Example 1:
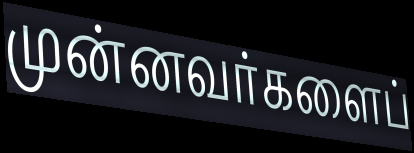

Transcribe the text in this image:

முன்னவர்களைப்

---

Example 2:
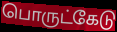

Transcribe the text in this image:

பொருட்கேடு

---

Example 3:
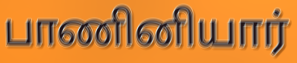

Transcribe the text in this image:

பாணினியார்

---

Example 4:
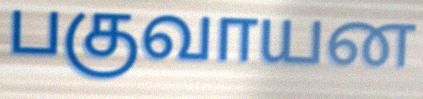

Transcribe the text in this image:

பகுவாயன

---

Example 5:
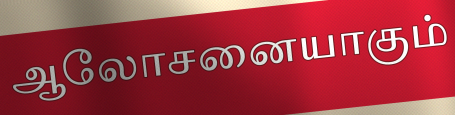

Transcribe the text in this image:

ஆலோசனையாகும்